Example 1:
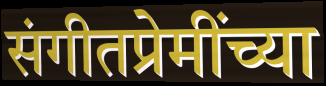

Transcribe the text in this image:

संगीतप्रेमींच्या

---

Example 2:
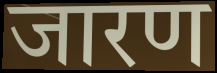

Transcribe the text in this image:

जारण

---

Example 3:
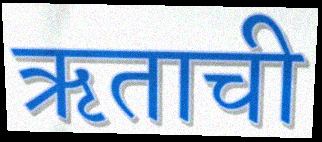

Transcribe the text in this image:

ऋताची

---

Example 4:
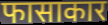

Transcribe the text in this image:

फासाकार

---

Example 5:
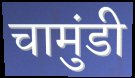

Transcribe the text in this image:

चामुंडी